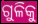
ଗୁଳିକୁ